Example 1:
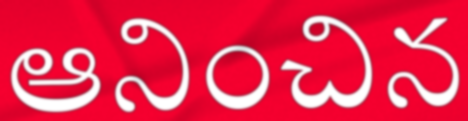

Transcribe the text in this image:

ఆనించిన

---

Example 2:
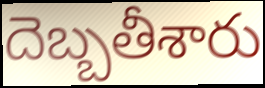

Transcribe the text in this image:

దెబ్బతీశారు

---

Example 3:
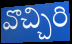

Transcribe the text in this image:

వొచ్చిరి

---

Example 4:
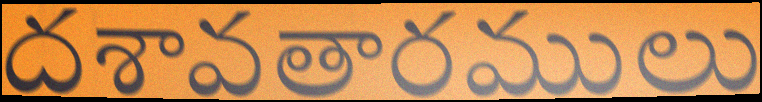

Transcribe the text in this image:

దశావతారములు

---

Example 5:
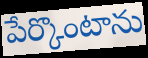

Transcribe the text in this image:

పేర్కొంటాను